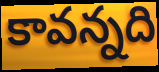
కావన్నది